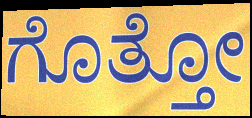
ಗೊತ್ತೋ